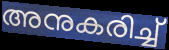
അനുകരിച്ച്